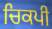
ਚਿਕਪੀ